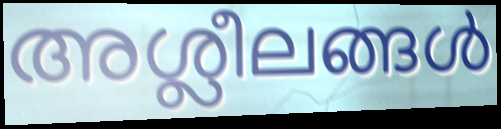
അശ്ലീലങ്ങൾ